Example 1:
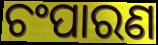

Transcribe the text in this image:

ଚଂପାରଣ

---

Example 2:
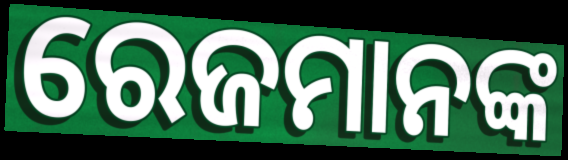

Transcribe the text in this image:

ରେଜମାନଙ୍କ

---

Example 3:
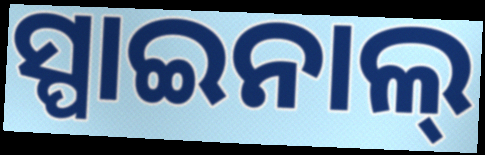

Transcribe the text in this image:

ସ୍ପାଇନାଲ୍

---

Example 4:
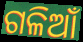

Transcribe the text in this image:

ଗଳିଆଁ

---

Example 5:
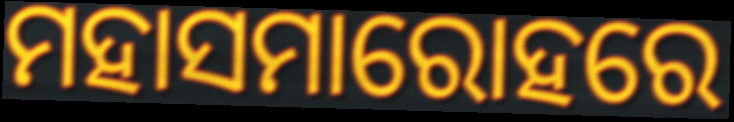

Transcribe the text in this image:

ମହାସମାରୋହରେ